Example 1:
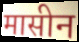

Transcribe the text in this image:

मासीन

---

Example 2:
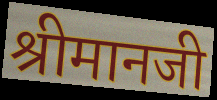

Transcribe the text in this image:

श्रीमानजी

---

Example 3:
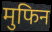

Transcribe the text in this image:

मुफिन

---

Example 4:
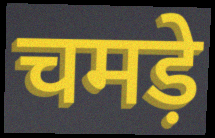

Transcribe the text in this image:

चमड़े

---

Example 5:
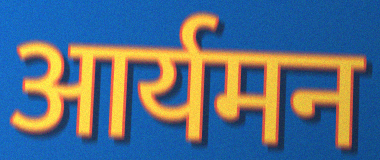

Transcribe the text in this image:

आर्यमन